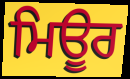
ਮਿਊਰ